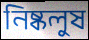
নিষ্কলুষ